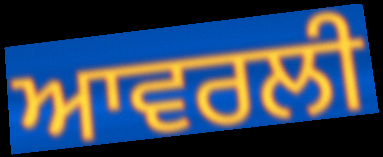
ਆਵਰਲੀ